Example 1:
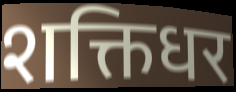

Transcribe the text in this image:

शक्तिधर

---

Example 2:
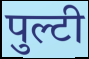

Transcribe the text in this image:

पुल्टी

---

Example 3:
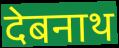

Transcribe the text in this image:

देबनाथ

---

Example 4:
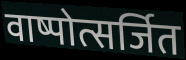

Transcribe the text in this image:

वाष्पोत्सर्जित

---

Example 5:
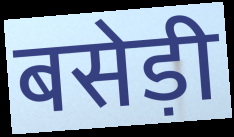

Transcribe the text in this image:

बसेड़ी